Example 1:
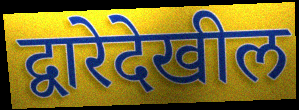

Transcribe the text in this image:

द्वारेदेखील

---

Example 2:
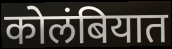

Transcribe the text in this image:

कोलंबियात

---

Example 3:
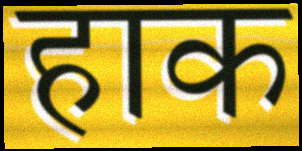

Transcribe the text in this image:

हाक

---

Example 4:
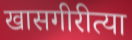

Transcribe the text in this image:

खासगीरीत्या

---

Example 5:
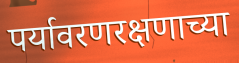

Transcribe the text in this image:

पर्यावरणरक्षणाच्या